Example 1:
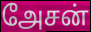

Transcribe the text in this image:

அேசன்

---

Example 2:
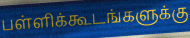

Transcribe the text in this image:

பள்ளிக்கூடங்களுக்கு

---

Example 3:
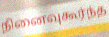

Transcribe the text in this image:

நினைவுகூர்ந்த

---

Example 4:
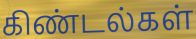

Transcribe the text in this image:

கிண்டல்கள்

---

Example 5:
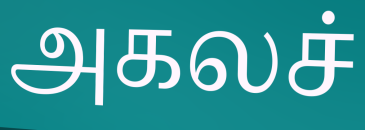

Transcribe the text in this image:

அகலச்